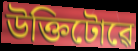
উক্তিটোৱে